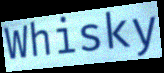
Whisky